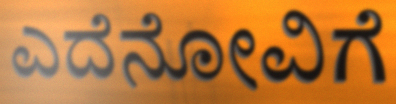
ಎದೆನೋವಿಗೆ